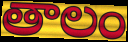
తాలం